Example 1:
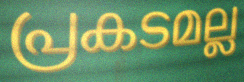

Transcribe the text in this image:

പ്രകടമല്ല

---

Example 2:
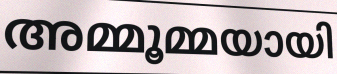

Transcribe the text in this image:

അമ്മൂമ്മയായി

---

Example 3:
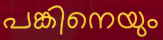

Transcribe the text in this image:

പങ്കിനെയും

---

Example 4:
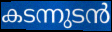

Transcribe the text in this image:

കടന്നുടൻ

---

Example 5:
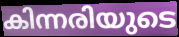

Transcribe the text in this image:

കിന്നരിയുടെ